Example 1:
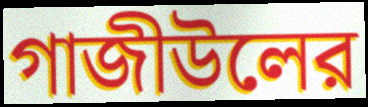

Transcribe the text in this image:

গাজীউলের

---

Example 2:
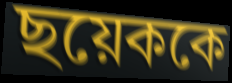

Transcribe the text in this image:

ছয়েককে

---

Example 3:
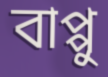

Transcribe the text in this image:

বাপ্পু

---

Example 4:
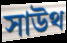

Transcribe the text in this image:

সাউথ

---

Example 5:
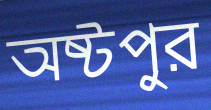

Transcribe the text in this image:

অষ্টপুর